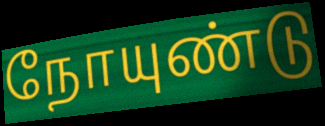
நோயுண்டு